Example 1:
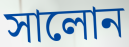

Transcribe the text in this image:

সালোন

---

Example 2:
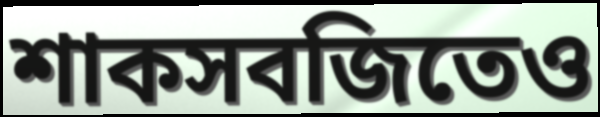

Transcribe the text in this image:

শাকসবজিতেও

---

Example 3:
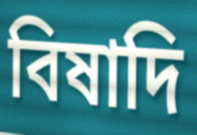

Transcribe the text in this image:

বিষাদি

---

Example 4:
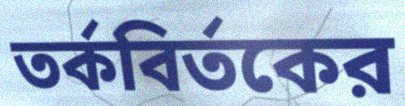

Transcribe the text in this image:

তর্কবির্তকের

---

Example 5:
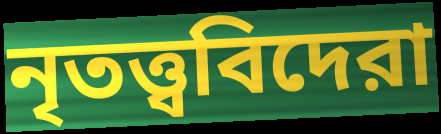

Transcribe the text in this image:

নৃতত্ত্ববিদেরা